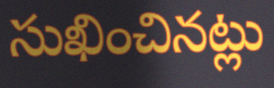
సుఖించినట్లు